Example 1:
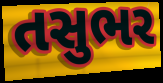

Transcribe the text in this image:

તસુભર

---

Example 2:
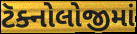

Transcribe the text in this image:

ટૅક્નોલોજીમાં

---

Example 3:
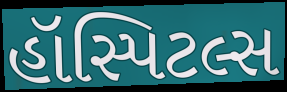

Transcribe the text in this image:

હૉસ્પિટલ્સ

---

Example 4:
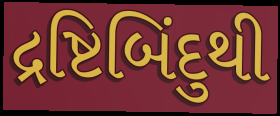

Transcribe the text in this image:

દ્રષ્ટિબિંદુથી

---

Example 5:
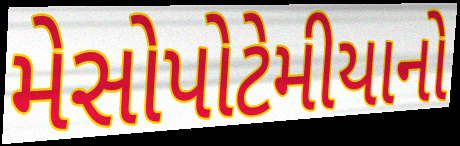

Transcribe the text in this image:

મેસોપોટેમીયાનો